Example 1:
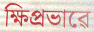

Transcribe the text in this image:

ক্ষিপ্ৰভাৱে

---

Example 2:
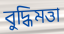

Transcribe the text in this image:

বুদ্ধিমত্তা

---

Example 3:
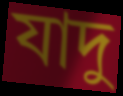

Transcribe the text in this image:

যাদু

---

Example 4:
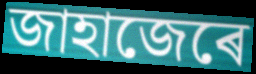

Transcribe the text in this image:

জাহাজেৰে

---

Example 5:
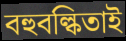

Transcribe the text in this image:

বহুবল্কিতাই